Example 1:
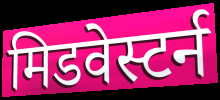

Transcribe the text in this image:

मिडवेस्टर्न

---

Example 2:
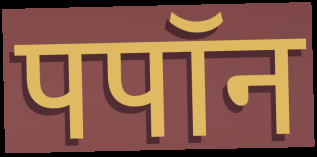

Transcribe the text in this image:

पपॉन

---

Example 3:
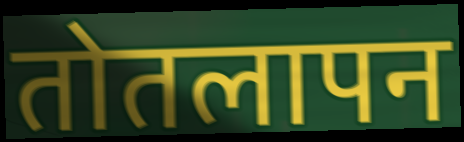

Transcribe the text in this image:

तोतलापन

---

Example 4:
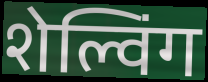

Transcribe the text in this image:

शेल्विंग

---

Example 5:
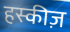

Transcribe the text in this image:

हस्कीज़